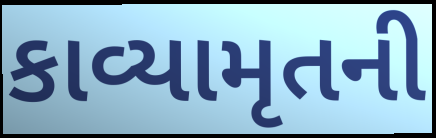
કાવ્યામૃતની